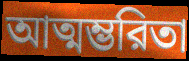
আত্মম্ভরিতা